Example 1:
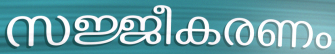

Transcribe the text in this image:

സജ്ജീകരണം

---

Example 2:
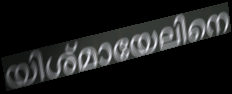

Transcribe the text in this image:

യിശ്മായേലിനെ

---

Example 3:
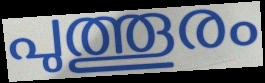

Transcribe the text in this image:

പുത്തൂരം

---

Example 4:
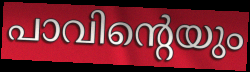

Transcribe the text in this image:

പാവിന്റെയും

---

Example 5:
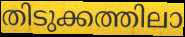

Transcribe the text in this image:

തിടുക്കത്തിലാ